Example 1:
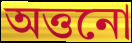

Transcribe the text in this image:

অত্তনো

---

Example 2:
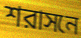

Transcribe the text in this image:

শরাসনে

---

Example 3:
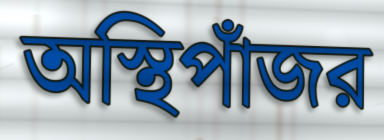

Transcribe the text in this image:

অস্থিপাঁজর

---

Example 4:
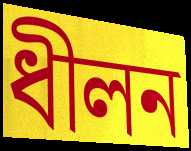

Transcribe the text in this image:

ধীলন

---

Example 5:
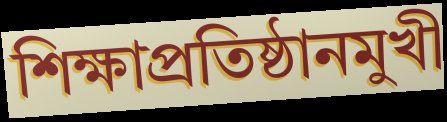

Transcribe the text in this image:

শিক্ষাপ্রতিষ্ঠানমুখী